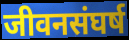
जीवनसंघर्ष